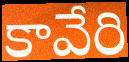
కావేరి